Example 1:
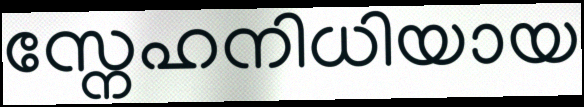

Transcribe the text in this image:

സ്നേഹനിധിയായ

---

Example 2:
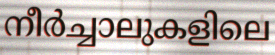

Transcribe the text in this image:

നീർച്ചാലുകളിലെ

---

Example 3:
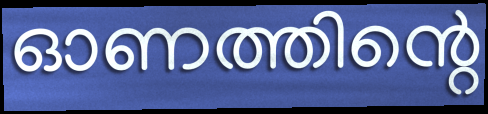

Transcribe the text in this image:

ഓണത്തിന്റെ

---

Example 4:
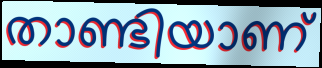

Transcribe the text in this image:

താണ്ടിയാണ്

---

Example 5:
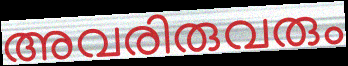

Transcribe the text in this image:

അവരിരുവരും